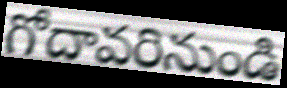
గోదావరినుండి